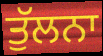
ਤੁੱਲਨਾ